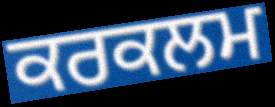
ਕਰਕਲਮ